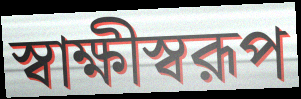
স্বাক্ষীস্বরূপ